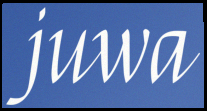
juwa